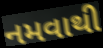
નમવાથી